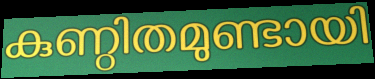
കുണ്ഠിതമുണ്ടായി